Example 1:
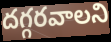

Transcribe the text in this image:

దగ్గరవాలని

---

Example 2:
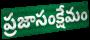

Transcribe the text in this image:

ప్రజాసంక్షేమం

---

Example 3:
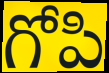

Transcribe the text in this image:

గోపి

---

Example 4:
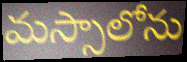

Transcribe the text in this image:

మస్సాలోను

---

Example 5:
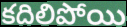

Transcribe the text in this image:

కదిలిపోయి